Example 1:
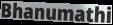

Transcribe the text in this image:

Bhanumathi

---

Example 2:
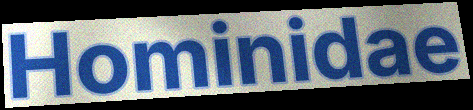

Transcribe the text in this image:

Hominidae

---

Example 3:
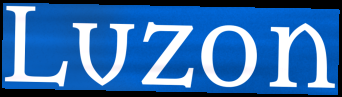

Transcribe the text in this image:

Luzon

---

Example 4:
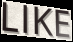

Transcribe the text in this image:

LIKE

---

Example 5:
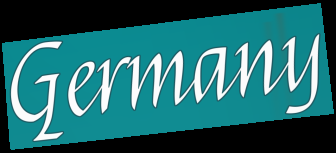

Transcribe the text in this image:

Germany